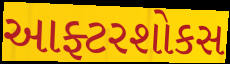
આફ્ટરશોકસ